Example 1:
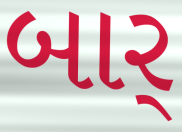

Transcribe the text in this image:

બાર્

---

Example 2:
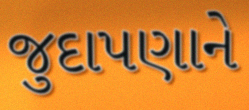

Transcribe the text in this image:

જુદાપણાને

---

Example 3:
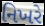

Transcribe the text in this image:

નિખરે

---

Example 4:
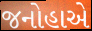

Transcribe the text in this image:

જનોહાએ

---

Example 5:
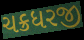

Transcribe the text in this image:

ચક્રધરજી